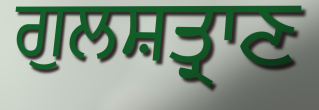
ਗੁਲਸ਼ਤ੍ਰਾਣ